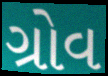
ગ્રોવ